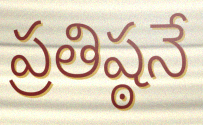
ప్రతిష్ఠనే